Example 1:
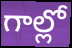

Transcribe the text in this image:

గాల్లో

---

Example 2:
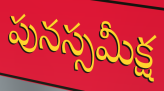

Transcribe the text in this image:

పునస్సమీక్ష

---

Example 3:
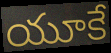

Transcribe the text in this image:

యూకే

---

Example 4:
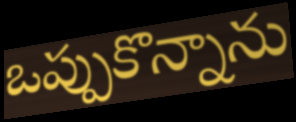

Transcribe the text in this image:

ఒప్పుకొన్నాను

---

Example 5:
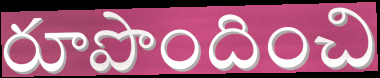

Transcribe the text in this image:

రూపొందించి